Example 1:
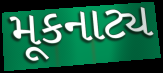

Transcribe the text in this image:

મૂકનાટ્ય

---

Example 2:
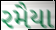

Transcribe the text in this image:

રમૈયા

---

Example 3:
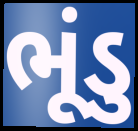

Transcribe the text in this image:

ભૂંડુ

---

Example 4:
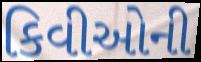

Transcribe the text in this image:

કિવીઓની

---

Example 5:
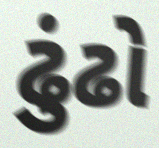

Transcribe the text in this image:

ઢુંઢો